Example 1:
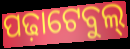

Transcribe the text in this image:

ପଢ଼ାଟେବୁଲ୍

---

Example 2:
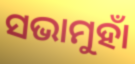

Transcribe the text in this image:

ସଭାମୁହାଁ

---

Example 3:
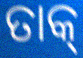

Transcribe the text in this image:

ତାକ୍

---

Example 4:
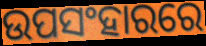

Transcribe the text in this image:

ଉପସଂହାରରେ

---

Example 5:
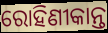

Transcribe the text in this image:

ରୋହିଣୀକାନ୍ତ